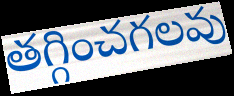
తగ్గించగలవు